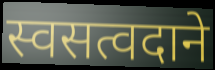
स्वसत्वदाने